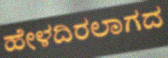
ಹೇಳದಿರಲಾಗದ